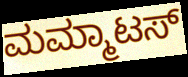
ಮಮ್ಮಾಟಸ್